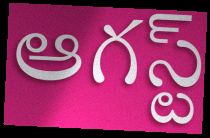
ఆగస్ట్